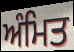
ਅੰਮਿਤ